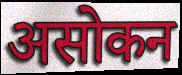
असोकन